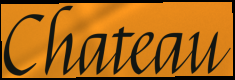
Chateau